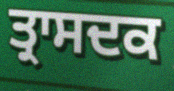
ਤ੍ਰਾਸਦਕ